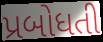
પ્રબોધતી